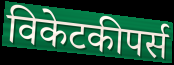
विकेटकीपर्स